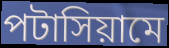
পটাসিয়ামে